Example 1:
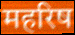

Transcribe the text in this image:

महरिष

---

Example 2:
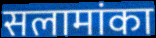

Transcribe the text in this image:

सलामांका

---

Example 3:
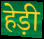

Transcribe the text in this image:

हेड़ी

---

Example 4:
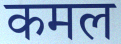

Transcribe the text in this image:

कमल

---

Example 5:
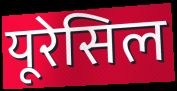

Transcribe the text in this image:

यूरेसिल